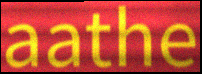
aathe